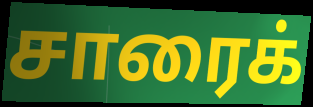
சாரைக்